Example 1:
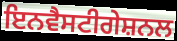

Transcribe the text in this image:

ਇਨਵੈਸਟੀਗੇਸ਼ਨਲ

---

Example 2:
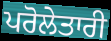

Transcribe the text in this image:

ਪਰੋਲੇਤਾਰੀ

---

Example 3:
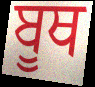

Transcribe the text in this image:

ਬੂਥ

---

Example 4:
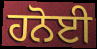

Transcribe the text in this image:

ਹਨੋਈ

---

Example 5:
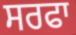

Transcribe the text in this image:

ਸਰਫਾ